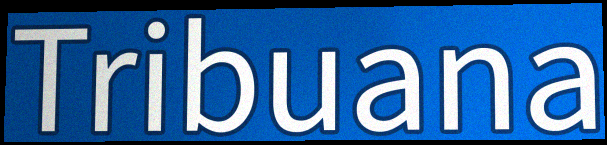
Tribuana